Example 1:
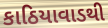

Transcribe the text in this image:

કાઠિયાવાડથી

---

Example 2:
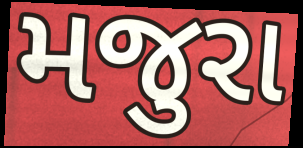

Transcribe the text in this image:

મજુરા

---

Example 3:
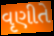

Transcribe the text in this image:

વૃણીતે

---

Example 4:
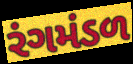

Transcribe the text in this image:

રંગમંડળ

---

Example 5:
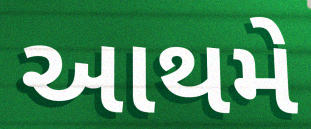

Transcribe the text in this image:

આથમે